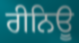
ਰੀਨਿਊ